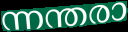
ന്നന്തരാ